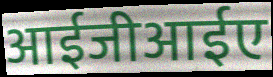
आईजीआईए